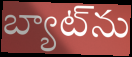
బ్యాట్‌ను